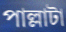
পাল্লাটা